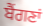
ਬੈਂਗਣਾਂ